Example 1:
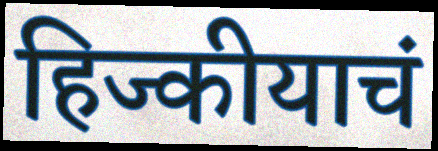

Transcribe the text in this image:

हिज्कीयाचं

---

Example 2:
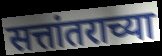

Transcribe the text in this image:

सत्तांतराच्या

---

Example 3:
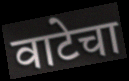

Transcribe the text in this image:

वाटेचा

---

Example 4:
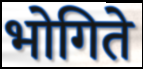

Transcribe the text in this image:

भोगिते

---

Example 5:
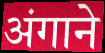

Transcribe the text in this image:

अंगाने